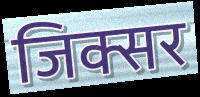
जिक्सर